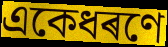
একেধৰণে